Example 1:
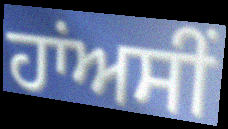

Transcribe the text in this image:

ਹਾਂਅਸੀਂ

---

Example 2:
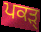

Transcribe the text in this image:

ਪਕੜ੍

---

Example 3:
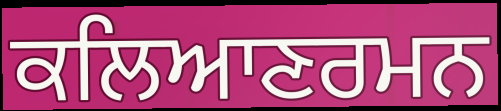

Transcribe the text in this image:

ਕਲਿਆਣਰਮਨ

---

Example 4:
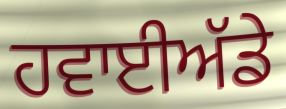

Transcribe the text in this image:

ਹਵਾਈਅੱਡੇ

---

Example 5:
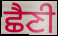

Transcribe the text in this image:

ਛੈਣੀ